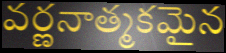
వర్ణనాత్మకమైన